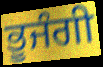
ਭੂਜੰਗੀ